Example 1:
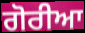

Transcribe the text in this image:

ਗੋਰੀਆ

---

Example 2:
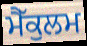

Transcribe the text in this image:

ਮੈੱਕੁਲਮ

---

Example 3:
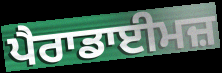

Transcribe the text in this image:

ਪੈਰਾਡਾਈਮਜ਼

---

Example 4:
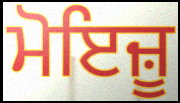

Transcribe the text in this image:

ਮੋਇਜ਼ੂ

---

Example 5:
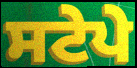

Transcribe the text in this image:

ਸਟੇਪੇ